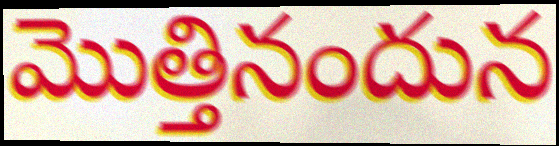
మొత్తినందున